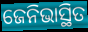
ଜେନିଭାସ୍ଥିତ